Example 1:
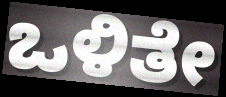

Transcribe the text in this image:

ಒಳಿತೇ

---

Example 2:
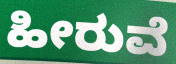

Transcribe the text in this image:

ಹೀರುವೆ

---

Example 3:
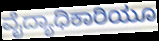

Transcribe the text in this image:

ವೈದ್ಯಾಧಿಕಾರಿಯೂ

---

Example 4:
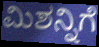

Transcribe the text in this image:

ಮಿಶನ್ನಿಗೆ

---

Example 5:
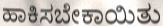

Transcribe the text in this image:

ಹಾಕಿಸಬೇಕಾಯಿತು